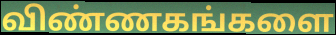
விண்ணகங்களை